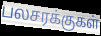
பலசரக்குகள்